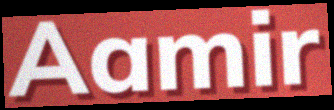
Aamir